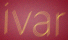
ivar